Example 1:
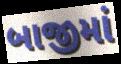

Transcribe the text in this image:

બાજીમાં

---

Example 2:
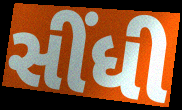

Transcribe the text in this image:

સીંધી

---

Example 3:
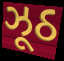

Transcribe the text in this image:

ઝૂઠ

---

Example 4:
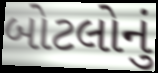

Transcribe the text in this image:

બોટલોનું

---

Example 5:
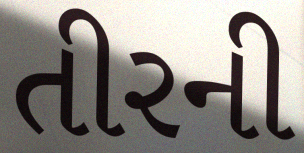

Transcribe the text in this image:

તીરની